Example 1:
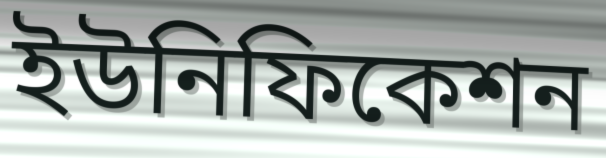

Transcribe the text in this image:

ইউনিফিকেশন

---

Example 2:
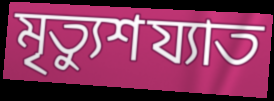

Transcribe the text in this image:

মৃত্যুশয্যাত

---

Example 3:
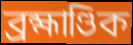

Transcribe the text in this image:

ব্ৰহ্মাণ্ডিক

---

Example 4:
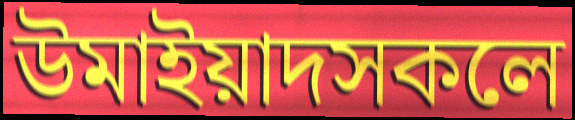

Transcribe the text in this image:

উমাইয়াদসকলে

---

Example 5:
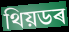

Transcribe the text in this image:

থিয়ডৰ